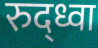
रुद्ध्वा